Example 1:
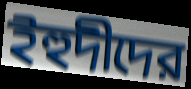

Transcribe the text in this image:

ইহুদীদের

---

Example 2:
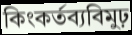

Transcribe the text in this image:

কিংকর্তব্যবিমুঢ়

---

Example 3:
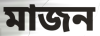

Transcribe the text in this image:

মাজন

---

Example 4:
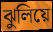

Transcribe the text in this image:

ঝুলিয়ে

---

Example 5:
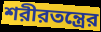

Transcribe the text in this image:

শরীরতন্ত্রের